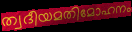
ത്വദീയമതിമോഹനം